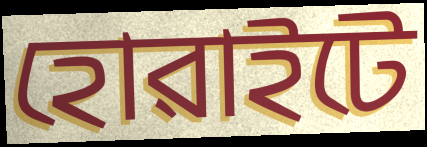
হোৱাইটে